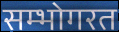
सम्भोगरत